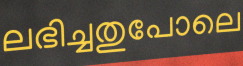
ലഭിച്ചതുപോലെ